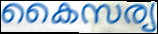
കൈസര്യ